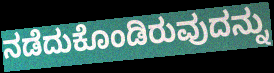
ನಡೆದುಕೊಂಡಿರುವುದನ್ನು